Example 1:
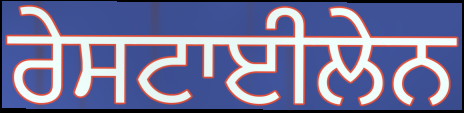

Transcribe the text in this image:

ਰੇਸਟਾਈਲੇਨ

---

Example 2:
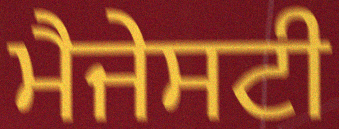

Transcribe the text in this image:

ਮੈਜੇਸਟੀ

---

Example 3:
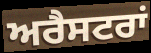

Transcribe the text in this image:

ਅਰੈਸਟਰਾਂ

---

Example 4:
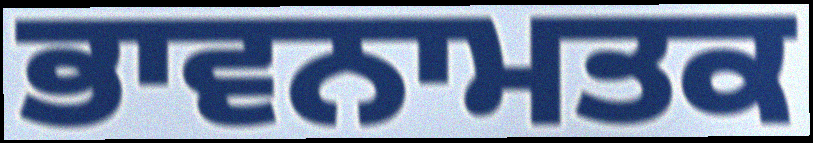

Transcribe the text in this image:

ਭਾਵਨਾਮਤਕ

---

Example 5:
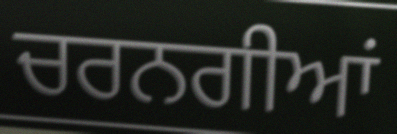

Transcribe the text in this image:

ਚਰਨਗੀਆਂ